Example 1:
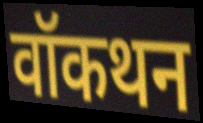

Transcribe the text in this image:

वॉकथन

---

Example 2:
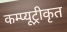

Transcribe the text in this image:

कम्प्यूट्रीकृत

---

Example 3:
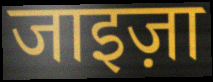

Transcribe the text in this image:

जाइज़ा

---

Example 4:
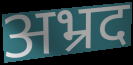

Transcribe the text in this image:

अभ्रद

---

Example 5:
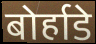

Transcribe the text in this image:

बोर्हाडे